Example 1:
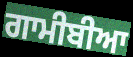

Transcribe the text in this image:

ਗਾਮੀਬੀਆ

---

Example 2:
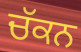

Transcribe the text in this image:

ਚੱਕਨ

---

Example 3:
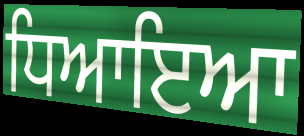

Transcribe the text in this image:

ਧਿਆਇਆ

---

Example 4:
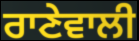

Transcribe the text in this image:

ਰਾਣੇਵਾਲੀ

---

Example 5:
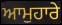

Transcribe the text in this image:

ਆਮੁਹਾਰੇ